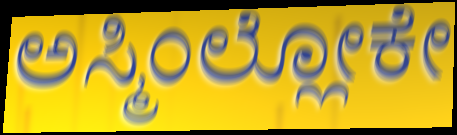
ಅಸ್ಮಿಂಲ್ಲೋಕೇ